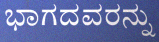
ಭಾಗದವರನ್ನು